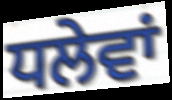
ਧਲੇਵਾਂ